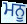
ਮਨੂ